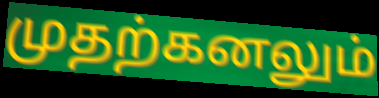
முதற்கனலும்